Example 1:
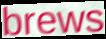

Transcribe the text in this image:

brews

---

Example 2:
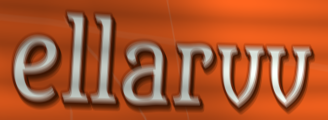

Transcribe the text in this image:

ellaruu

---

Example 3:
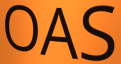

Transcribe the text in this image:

OAS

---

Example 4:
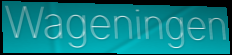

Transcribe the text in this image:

Wageningen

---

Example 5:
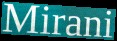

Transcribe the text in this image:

Mirani